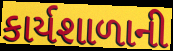
કાર્યશાળાની